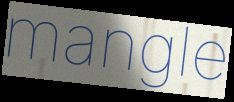
mangle